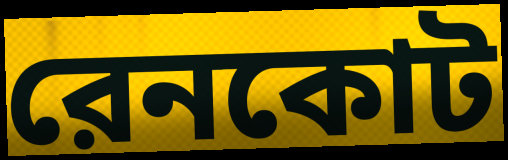
রেনকোট